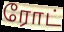
ரோட்